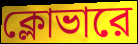
ক্লোভারে